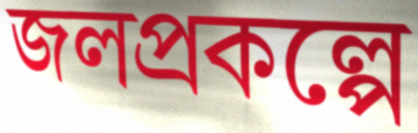
জলপ্রকল্পে